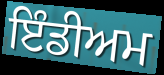
ਇੰਡੀਅਮ